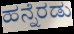
ಹನ್ನೆರಡು